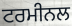
ਟਰਮੀਨਲ